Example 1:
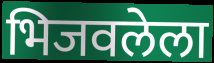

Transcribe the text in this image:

भिजवलेला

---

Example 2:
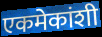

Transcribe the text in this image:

एकमेकांशी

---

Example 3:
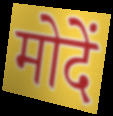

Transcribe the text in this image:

मोदें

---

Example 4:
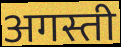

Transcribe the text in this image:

अगस्ती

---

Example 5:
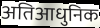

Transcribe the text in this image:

अतिआधुनिक